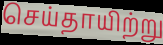
செய்தாயிற்று